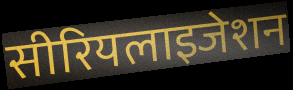
सीरियलाइजेशन